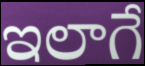
ఇలాగే